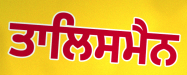
ਤਾਲਿਸਮੈਨ